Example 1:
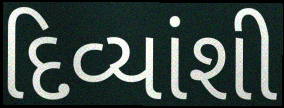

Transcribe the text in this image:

દિવ્યાંશી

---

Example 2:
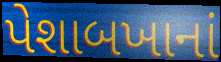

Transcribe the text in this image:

પેશાબખાનાં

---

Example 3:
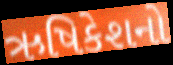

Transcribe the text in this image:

ઋષિકેશનો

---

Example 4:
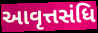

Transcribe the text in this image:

આવૃત્તસંધિ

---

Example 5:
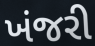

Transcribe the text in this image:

ખંજરી